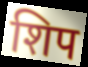
शिप